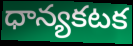
ధాన్యకటక